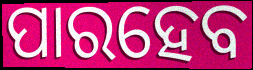
ପାରହେବ